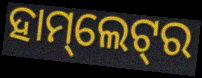
ହାମ୍‌ଲେଟ୍‌ର